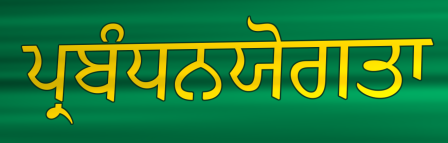
ਪ੍ਰਬੰਧਨਯੋਗਤਾ